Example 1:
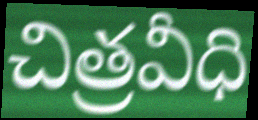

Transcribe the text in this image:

చిత్రవీధి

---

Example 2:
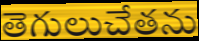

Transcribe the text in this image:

తెగులుచేతను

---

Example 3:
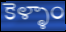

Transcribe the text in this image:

కెళ్ళాం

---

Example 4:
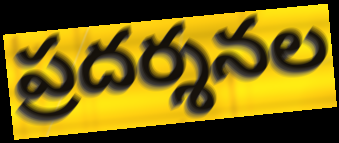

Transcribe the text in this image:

ప్రదర్శనల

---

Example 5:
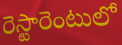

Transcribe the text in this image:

రెస్టారెంటులో